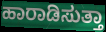
ಹಾರಾಡಿಸುತ್ತಾ